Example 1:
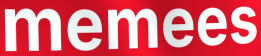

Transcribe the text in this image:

memees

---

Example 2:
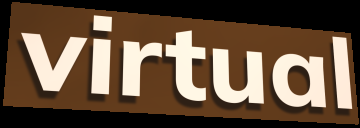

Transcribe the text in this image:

virtual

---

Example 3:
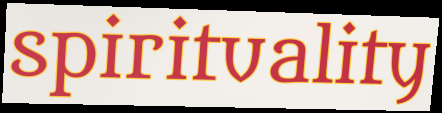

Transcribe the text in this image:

spirituality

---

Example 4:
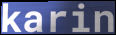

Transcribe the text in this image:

karin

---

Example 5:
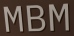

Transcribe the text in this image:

MBM